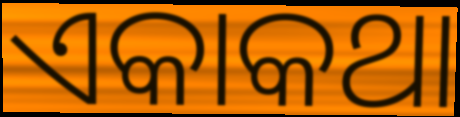
ଏକାକଥା